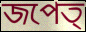
জপেত্